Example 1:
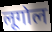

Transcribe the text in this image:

लूगोल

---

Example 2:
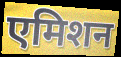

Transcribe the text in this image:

एमिशन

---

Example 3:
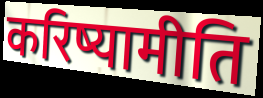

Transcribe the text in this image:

करिष्यामीति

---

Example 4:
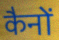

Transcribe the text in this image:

कैनों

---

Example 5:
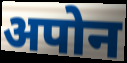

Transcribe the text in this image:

अपोन